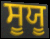
ਸੂਯੂ